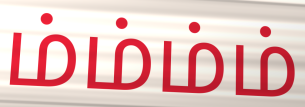
ம்ம்ம்ம்